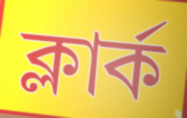
ক্লার্ক